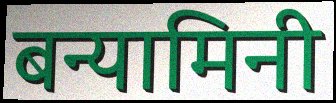
बन्यामिनी